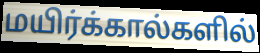
மயிர்க்கால்களில்